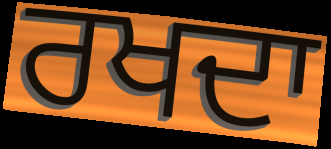
ਰਖਦਾ